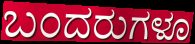
ಬಂದರುಗಳೂ